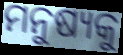
ମନୁଷ୍ୟକୁ